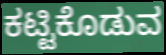
ಕಟ್ಟಿಕೊಡುವ